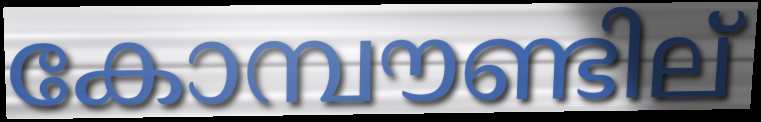
കോമ്പൗണ്ടില്